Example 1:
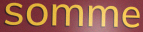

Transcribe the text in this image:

somme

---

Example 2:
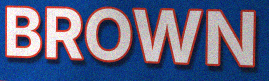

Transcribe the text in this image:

BROWN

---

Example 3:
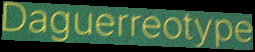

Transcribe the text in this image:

Daguerreotype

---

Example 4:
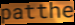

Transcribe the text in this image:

patthe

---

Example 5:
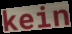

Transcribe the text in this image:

kein